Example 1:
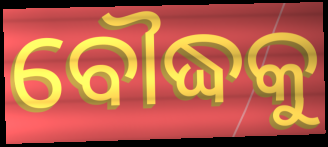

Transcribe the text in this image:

ବୌଦ୍ଧକୁ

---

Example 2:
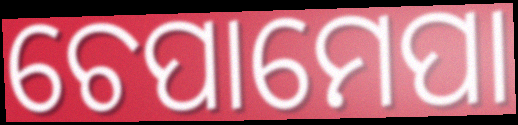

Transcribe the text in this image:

ଚେପାମେପା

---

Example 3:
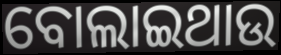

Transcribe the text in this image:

ବୋଲାଇଥାଉ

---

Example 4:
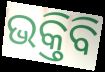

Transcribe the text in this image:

ଭକ୍ତିବି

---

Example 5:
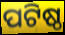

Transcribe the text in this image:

ପଟିଷ୍ଠ